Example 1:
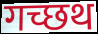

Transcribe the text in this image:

गच्छथ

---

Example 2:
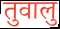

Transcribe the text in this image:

तुवालु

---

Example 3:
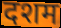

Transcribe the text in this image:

दशम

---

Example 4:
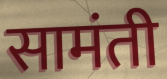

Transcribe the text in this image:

सामंती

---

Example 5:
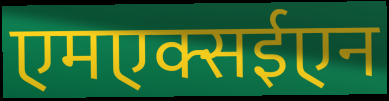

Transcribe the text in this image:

एमएक्सईएन